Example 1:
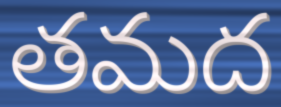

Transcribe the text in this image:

తమద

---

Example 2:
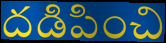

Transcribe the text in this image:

దడిపించి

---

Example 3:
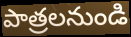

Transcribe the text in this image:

పాత్రలనుండి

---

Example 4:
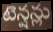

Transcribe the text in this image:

టెన్షన్లు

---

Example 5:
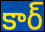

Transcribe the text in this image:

కార్